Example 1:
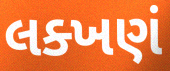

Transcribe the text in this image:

લક્ખણં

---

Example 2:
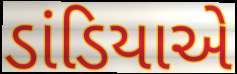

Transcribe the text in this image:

ડાંડિયાએ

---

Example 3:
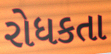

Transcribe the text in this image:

રોધકતા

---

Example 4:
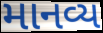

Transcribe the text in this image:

માનવ્ય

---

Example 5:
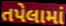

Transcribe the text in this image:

તપેલામાં